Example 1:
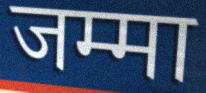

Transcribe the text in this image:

जम्मा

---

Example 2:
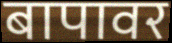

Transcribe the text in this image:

बापावर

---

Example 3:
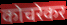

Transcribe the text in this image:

कोचरेकर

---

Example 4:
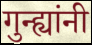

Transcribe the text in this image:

गुन्ह्यांनी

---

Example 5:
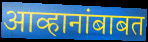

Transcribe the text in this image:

आव्हानांबाबत